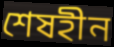
শেষহীন